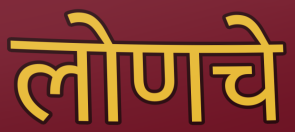
लोणचे